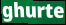
ghurte